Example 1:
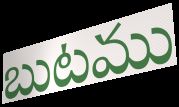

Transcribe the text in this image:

బుటము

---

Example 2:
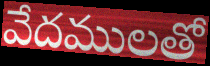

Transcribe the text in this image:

వేదములతో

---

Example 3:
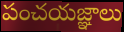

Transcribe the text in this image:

పంచయజ్ఞాలు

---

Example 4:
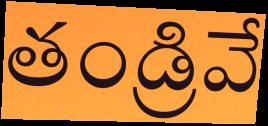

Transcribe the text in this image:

తండ్రివే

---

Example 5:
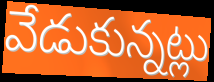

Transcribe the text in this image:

వేడుకున్నట్లు